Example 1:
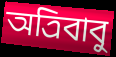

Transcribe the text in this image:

অত্রিবাবু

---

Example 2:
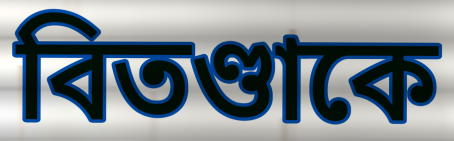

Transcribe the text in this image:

বিতণ্ডাকে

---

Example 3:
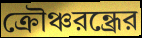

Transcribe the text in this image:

ক্রৌঞ্চরন্ধ্রের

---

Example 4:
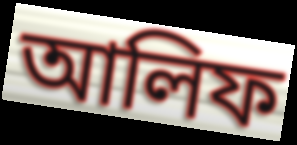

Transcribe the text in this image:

আলিফ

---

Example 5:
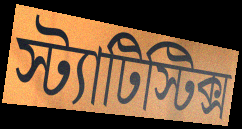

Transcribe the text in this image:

স্ট্যাটিস্টিক্স